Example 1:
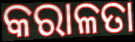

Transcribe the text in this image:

କରାଳତା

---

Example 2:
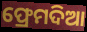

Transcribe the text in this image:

ଫ୍ରେମଦିଆ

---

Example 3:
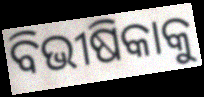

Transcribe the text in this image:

ବିଭୀଷିକାକୁ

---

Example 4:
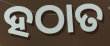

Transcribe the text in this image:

ହଠାତ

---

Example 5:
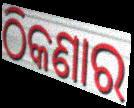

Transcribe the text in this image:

ଠିକଣାର